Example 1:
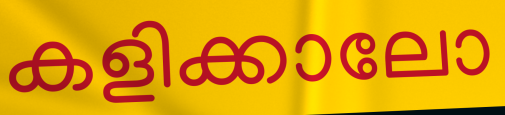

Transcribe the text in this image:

കളിക്കാലോ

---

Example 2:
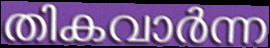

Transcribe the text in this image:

തികവാർന്ന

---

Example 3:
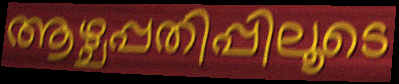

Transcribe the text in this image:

ആഴ്ചപ്പതിപ്പിലൂടെ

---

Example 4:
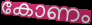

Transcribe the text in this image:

കോണം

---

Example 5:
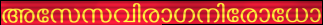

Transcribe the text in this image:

അസേസവിരാഗനിരോധോ